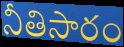
నీతిసారం